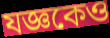
যজ্ঞকেও